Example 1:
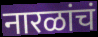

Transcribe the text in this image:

नारळांचं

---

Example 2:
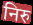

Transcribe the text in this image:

निरु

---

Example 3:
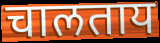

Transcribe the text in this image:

चालताय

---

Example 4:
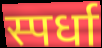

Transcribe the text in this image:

स्पर्धा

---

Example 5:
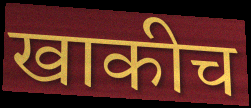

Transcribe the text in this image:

खाकीच